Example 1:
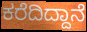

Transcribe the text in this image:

ಕರೆದಿದ್ದಾನೆ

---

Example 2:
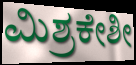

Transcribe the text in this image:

ಮಿಶ್ರಕೇಶೀ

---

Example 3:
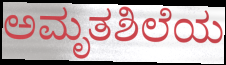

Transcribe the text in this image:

ಅಮೃತಶಿಲೆಯ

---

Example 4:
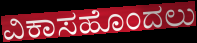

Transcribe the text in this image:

ವಿಕಾಸಹೊಂದಲು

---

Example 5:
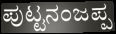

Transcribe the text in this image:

ಪುಟ್ಟನಂಜಪ್ಪ